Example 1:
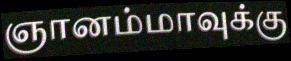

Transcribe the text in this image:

ஞானம்மாவுக்கு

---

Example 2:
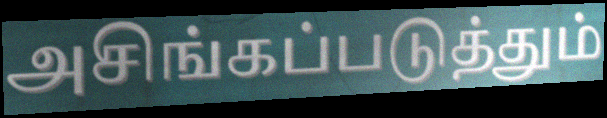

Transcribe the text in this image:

அசிங்கப்படுத்தும்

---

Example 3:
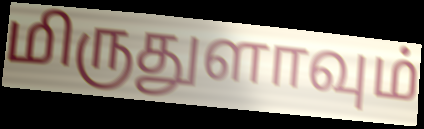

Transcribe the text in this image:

மிருதுளாவும்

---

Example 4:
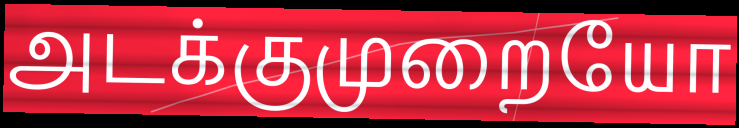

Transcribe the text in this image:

அடக்குமுறையோ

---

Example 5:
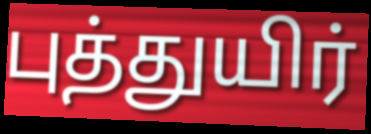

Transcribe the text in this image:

புத்துயிர்